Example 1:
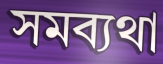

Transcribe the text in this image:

সমব্যথা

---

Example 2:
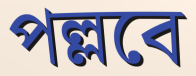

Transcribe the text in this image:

পল্লবে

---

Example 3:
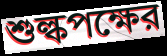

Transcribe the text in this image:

শুল্কপক্ষের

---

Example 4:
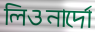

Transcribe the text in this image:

লিওনার্দো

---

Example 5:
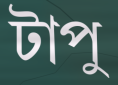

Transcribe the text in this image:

টাপু